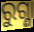
ରୁଗ୍ଣା